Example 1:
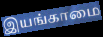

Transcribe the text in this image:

இயங்காமை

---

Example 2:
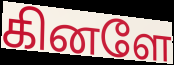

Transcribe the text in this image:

கினளே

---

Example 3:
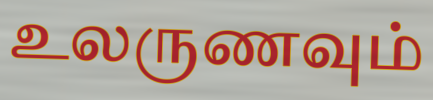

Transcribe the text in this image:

உலருணவும்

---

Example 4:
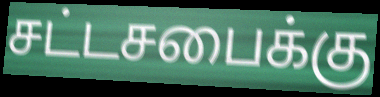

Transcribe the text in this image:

சட்டசபைக்கு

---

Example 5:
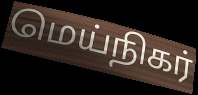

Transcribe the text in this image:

மெய்நிகர்